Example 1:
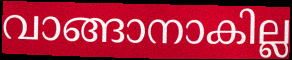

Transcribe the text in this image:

വാങ്ങാനാകില്ല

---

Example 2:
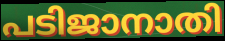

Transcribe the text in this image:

പടിജാനാതി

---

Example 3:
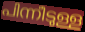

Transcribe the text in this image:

പിന്നീടുള്ള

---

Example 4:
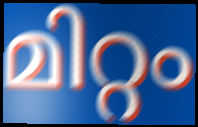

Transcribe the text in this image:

മിറ്റം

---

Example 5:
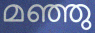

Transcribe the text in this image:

മഞ്ഞു